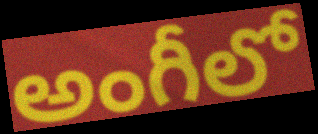
అంగీలో